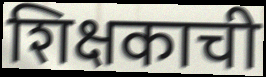
शिक्षकाची